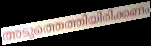
അടുത്തെത്തിയിരിക്കണം